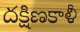
దక్షిణకాళీ